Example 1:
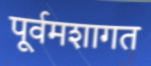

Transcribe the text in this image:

पूर्वमशागत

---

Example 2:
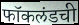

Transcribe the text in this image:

फॉकलंडची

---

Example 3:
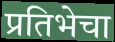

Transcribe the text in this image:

प्रतिभेचा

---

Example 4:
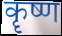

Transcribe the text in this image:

कॄष्ण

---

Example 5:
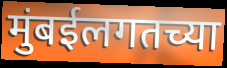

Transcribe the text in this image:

मुंबईलगतच्या